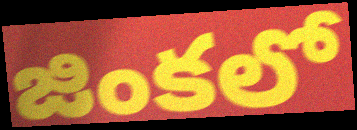
జింకలో